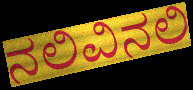
ನಲಿವಿನಲಿ